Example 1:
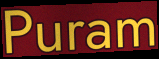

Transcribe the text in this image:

Puram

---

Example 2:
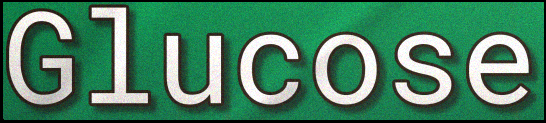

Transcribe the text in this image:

Glucose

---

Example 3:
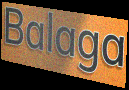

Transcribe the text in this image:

Balaga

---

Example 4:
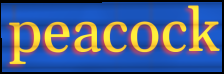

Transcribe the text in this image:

peacock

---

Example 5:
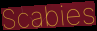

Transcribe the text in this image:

Scabies